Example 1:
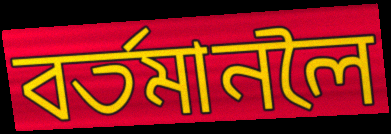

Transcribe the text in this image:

বৰ্তমানলৈ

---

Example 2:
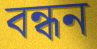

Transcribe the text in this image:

বন্ধন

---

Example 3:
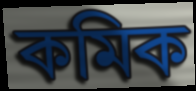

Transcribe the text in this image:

কমিক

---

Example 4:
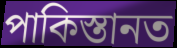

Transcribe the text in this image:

পাকিস্তানত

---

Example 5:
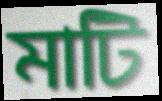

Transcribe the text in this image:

মাটি